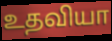
உதவியா